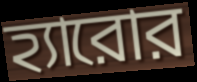
হ্যারোর